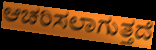
ಆಚರಿಸಲಾಗುತ್ತದೆ